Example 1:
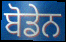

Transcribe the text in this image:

ਬੋਡੇਨ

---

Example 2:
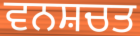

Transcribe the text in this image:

ਵਨਸ਼ਚਤ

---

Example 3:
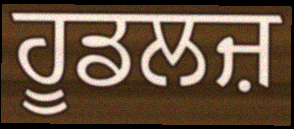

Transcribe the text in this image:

ਹੂਡਲਜ਼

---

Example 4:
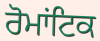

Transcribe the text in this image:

ਰੋਮਾਂਟਿਕ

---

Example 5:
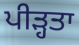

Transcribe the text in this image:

ਪੀੜ੍ਹਤਾ